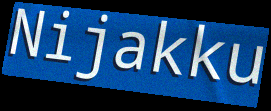
Nijakku